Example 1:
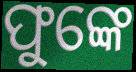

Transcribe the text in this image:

ଫୁଙ୍କେ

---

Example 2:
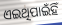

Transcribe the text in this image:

ଏଇଥିପାଇଁହିଁ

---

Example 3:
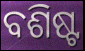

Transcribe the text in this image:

ବଶିଷ୍ଟ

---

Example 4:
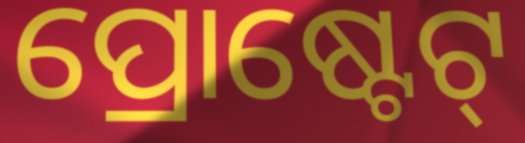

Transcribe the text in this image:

ପ୍ରୋଷ୍ଟେଟ୍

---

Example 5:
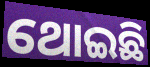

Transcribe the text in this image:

ଥୋଇଛି